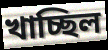
খাচ্ছিল